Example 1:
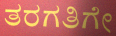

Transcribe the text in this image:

ತರಗತಿಗೇ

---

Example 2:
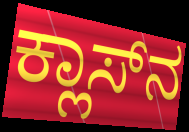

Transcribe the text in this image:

ಕ್ಲಾಸ್‌ನ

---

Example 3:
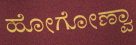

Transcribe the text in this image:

ಹೋಗೋಣ್ವಾ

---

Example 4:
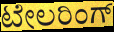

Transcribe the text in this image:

ಟೇಲರಿಂಗ್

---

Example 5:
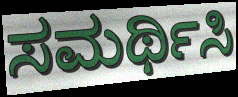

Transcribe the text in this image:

ಸಮರ್ಥಿಸಿ